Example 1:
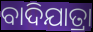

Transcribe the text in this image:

ବାଦିଯାତ୍ରା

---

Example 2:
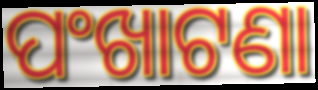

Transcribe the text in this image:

ପଂଖାଟଣା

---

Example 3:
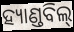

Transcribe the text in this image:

ହ୍ୟାଣ୍ଡବିଲ୍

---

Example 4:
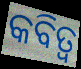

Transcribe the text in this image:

କବିତ୍ବ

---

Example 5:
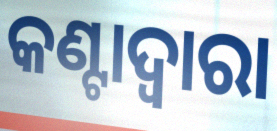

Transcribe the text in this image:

କଣ୍ଟାଦ୍ୱାରା